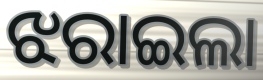
ଝରାଇଲା